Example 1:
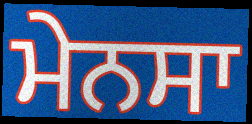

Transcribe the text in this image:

ਮੇਨਸਾ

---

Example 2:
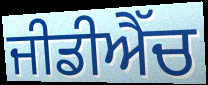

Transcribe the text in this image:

ਜੀਡੀਐੱਚ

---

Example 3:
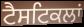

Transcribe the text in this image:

ਟੈਸਟਿਕਲਾਂ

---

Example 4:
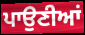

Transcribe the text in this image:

ਪਾਉਣੀਆਂ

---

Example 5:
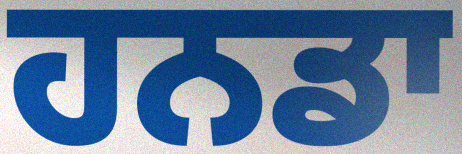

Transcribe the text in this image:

ਹਨਡਾ